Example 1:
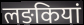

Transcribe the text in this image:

लङकियां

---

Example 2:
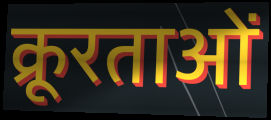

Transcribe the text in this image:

क्रूरताओं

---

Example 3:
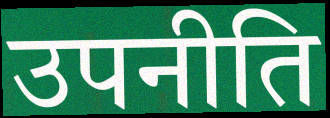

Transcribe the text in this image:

उपनीति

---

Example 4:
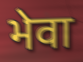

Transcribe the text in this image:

भेवा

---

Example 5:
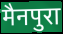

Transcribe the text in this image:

मैनपुरा